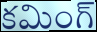
కమింగ్